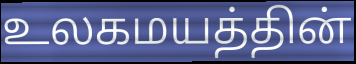
உலகமயத்தின்